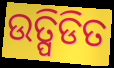
ଉତ୍ପିଡିତ